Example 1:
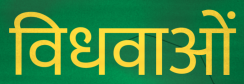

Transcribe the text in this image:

विधवाओं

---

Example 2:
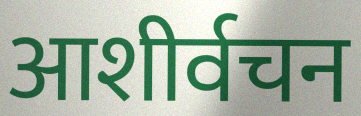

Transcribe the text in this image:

आशीर्वचन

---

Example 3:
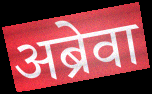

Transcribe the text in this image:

अब्रेवा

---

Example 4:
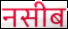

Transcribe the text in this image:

नसीब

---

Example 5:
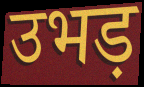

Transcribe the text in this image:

उभड़